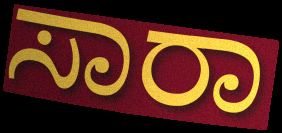
ಸಾರಾ